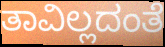
ತಾವಿಲ್ಲದಂತೆ